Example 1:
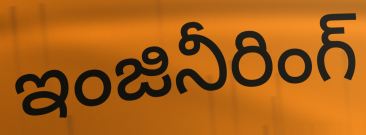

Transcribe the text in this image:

ఇంజినీరింగ్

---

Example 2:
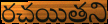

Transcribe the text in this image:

రచయితని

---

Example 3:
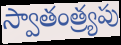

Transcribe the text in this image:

స్వాతంత్ర్యపు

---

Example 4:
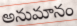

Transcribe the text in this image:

అనుమానం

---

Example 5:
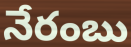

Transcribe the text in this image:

నేరంబు